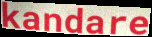
kandare